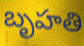
బృహతి